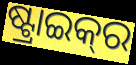
ଷ୍ଟ୍ରାଇକ୍‍ର